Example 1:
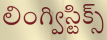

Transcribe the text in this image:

లింగ్విస్టిక్స్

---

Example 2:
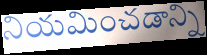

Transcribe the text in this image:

నియమించడాన్ని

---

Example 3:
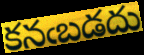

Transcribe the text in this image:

కనఁబడదు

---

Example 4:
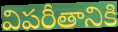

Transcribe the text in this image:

విపరీతానికి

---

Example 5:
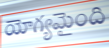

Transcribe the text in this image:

యోగ్యమైంది